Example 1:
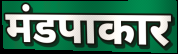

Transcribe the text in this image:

मंडपाकार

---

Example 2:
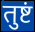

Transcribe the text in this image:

तुष्टं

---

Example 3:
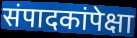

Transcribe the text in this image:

संपादकांपेक्षा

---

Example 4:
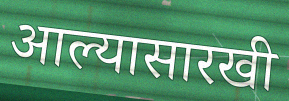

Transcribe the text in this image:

आल्यासारखी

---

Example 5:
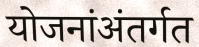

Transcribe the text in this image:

योजनांअंतर्गत